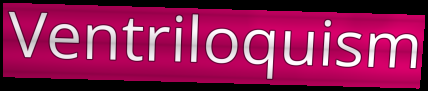
Ventriloquism